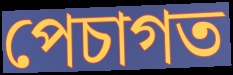
পেচাগত